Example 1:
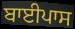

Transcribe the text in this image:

ਬਾਈਪਾਸ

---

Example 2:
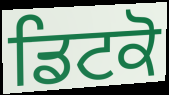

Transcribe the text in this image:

ਡਿਟਕੋ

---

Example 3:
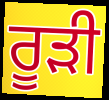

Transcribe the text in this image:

ਰੂੜੀ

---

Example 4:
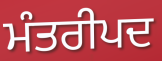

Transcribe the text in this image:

ਮੰਤਰੀਪਦ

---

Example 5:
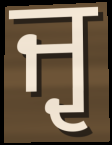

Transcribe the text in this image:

ਜ੍ਦ